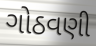
ગોઠવણી